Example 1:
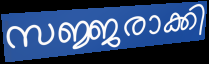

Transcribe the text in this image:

സജ്ജരാക്കി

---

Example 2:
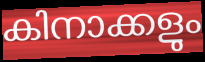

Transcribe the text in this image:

കിനാക്കളും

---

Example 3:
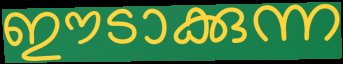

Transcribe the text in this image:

ഈടാക്കുന്ന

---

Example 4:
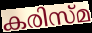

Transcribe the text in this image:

കരിസ്മ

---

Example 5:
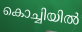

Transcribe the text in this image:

കൊച്ചിയിൽ